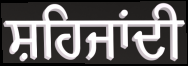
ਸ਼ਹਿਜਾਂਦੀ